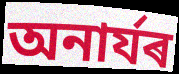
অনাৰ্যৰ